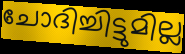
ചോദിച്ചിട്ടുമില്ല